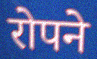
रोपने